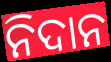
ନିଦାନ